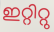
ഇറ്റിറ്റു